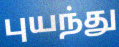
புயந்து